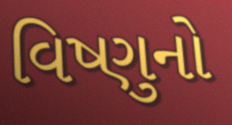
વિષ્ણુનો